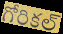
గోరికల్